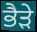
ਭੈਡ਼ੇ